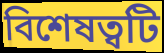
বিশেষত্বটি